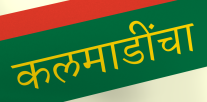
कलमाडींचा